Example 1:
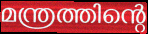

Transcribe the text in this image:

മന്ത്രത്തിന്റെ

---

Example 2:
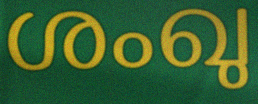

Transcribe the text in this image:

ശംഖു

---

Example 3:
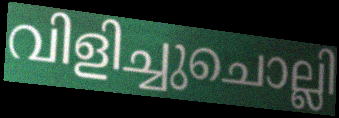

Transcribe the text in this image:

വിളിച്ചുചൊല്ലി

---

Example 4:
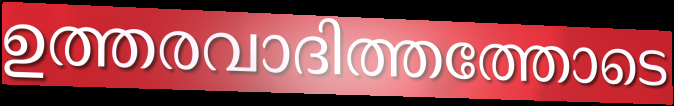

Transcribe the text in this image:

ഉത്തരവാദിത്തത്തോടെ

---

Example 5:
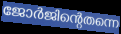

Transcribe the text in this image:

ജോർജിന്റെതന്നെ